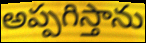
అప్పగిస్తాను